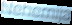
Nehemija